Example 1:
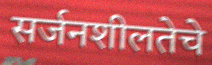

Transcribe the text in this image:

सर्जनशीलतेचे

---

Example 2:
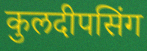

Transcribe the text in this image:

कुलदीपसिंग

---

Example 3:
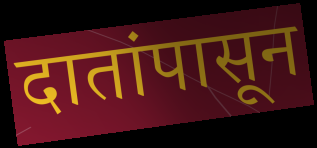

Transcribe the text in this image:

दातांपासून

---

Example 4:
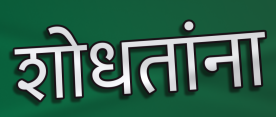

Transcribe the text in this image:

शोधतांना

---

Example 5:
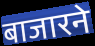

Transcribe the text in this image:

बाजारने